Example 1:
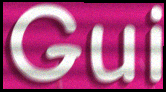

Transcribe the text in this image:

Gui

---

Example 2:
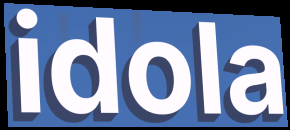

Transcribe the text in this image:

idola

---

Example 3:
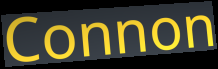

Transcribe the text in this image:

Connon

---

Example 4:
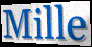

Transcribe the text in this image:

Mille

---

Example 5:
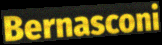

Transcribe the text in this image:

Bernasconi